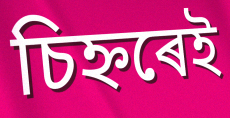
চিহ্নৰেই